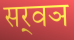
सर्वञ